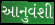
આનુવંશી